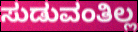
ಸುಡುವಂತಿಲ್ಲ